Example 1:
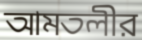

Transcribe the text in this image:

আমতলীর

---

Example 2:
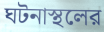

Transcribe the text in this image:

ঘটনাস্থলের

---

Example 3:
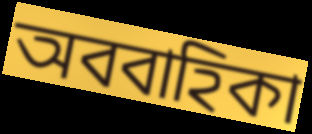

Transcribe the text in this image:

অববাহিকা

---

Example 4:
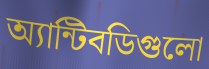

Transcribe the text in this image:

অ্যান্টিবডিগুলো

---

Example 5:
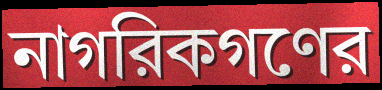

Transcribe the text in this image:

নাগরিকগণের